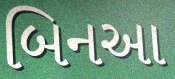
બિનઆ